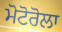
ਮੋਟੋਰੋਲਾ